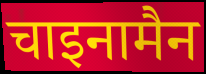
चाइनामैन